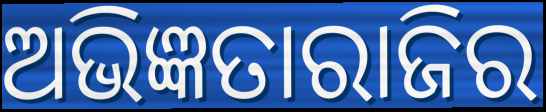
ଅଭିଜ୍ଞତାରାଜିର